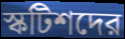
স্কটিশদের